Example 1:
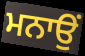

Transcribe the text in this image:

ਮਨਾਉਂ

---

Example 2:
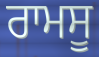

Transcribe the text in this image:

ਰਾਮਸੂ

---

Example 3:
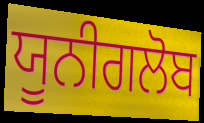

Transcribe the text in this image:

ਯੂਨੀਗਲੋਬ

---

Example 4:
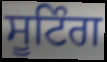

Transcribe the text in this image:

ਸੂਟਿੰਗ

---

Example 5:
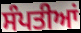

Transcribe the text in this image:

ਸੰਪਤੀਆਂ